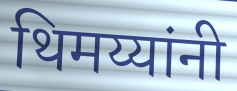
थिमय्यांनी